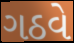
ગઠવે